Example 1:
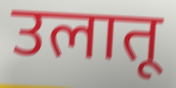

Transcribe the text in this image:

उलातू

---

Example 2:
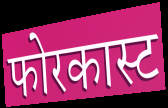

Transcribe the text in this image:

फोरकास्ट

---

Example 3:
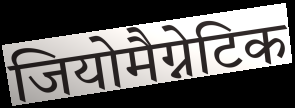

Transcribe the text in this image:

जियोमैग्नेटिक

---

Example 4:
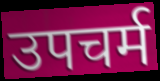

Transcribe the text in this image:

उपचर्म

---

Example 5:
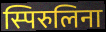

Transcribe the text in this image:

स्पिरुलिना